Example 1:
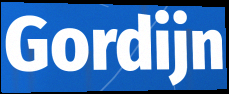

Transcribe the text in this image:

Gordijn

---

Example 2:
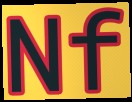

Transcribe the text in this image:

Nf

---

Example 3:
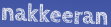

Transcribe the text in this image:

nakkeeran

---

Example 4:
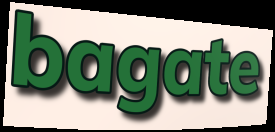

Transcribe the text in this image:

bagate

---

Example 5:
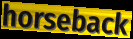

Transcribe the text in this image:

horseback